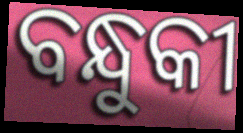
ବନ୍ଧୁକୀ